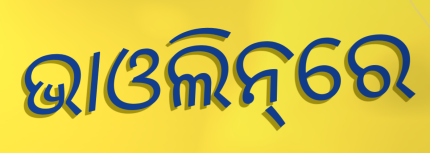
ଭାଓଲିନ୍‌ରେ